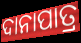
ଦାନାପାତ୍ର